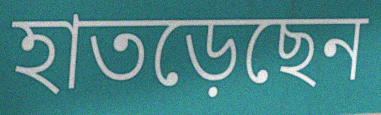
হাতড়েছেন